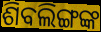
ଶିବଲିଙ୍ଗଙ୍କ